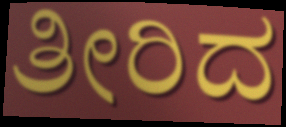
ತೀರಿದ